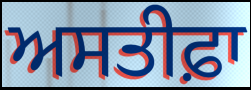
ਅਸਤੀਫ਼ਾ